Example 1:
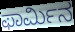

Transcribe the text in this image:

ಫಾರ್ಮಿನ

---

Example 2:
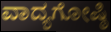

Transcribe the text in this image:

ವಾದ್ಯಗೋಷ್ಠಿ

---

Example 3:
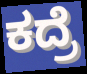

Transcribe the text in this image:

ಕದ್ರೆ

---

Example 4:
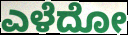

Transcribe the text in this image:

ಎಳೆದೋ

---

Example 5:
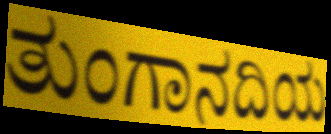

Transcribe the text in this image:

ತುಂಗಾನದಿಯ